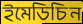
ইমেডিচিন